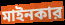
মাইনকার